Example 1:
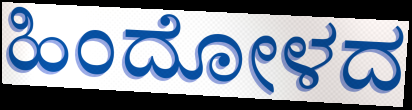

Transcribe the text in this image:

ಹಿಂದೋಳದ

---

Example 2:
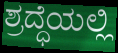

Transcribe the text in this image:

ಶ್ರದ್ಧೆಯಲ್ಲಿ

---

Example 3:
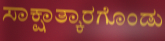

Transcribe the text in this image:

ಸಾಕ್ಷಾತ್ಕಾರಗೊಂಡು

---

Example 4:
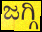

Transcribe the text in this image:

ಜಗ್ಗಿ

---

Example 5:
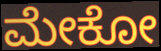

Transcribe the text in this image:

ಮೇಕೋ